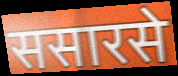
ससारसे